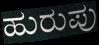
ಹುರುಪು